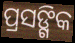
ପ୍ରସଙ୍ଗିକ